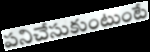
పనిచేసుకుంటుంటే